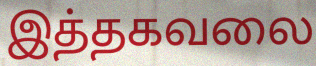
இத்தகவலை